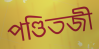
পণ্ডিতজী